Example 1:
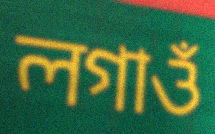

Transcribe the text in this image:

লগাওঁ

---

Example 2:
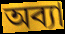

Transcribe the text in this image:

অব্যা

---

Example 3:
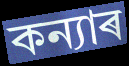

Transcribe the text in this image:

কন্যাৰ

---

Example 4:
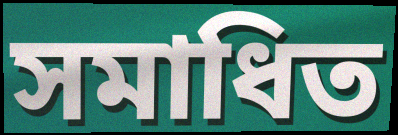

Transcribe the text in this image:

সমাধিত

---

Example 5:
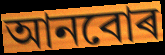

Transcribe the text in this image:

আনবোৰ